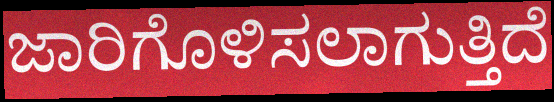
ಜಾರಿಗೊಳಿಸಲಾಗುತ್ತಿದೆ